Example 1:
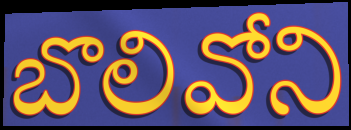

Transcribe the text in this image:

బొలివోని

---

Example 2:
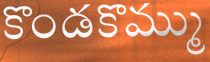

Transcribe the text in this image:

కొండకొమ్ము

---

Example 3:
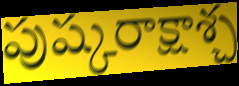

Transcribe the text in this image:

పుష్కరాక్షాశ్చ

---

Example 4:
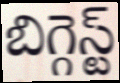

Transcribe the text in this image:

బిగ్గెస్ట్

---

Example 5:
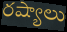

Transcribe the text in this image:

రష్యాలు